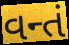
વન્તં